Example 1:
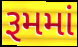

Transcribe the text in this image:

રૂમમાં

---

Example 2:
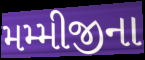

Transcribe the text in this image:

મમ્મીજીના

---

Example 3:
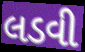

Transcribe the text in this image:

લડવી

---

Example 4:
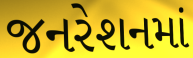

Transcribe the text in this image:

જનરેશનમાં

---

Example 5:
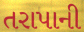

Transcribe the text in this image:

તરાપાની